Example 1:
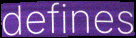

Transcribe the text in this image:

defines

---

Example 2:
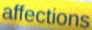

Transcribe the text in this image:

affections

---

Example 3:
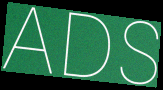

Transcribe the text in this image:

ADS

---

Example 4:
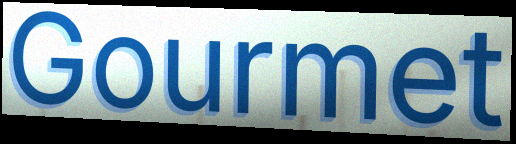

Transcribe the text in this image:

Gourmet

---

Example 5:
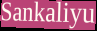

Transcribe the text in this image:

Sankaliyu